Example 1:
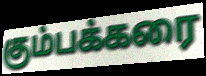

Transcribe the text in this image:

கும்பக்கரை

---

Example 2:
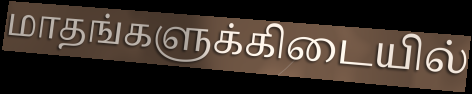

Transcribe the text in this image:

மாதங்களுக்கிடையில்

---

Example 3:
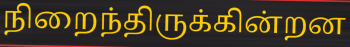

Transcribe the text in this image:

நிறைந்திருக்கின்றன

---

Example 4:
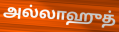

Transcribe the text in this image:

அல்லாஹுத்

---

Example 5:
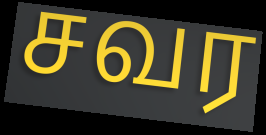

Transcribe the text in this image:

சவர